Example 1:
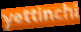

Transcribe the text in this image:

yettinchi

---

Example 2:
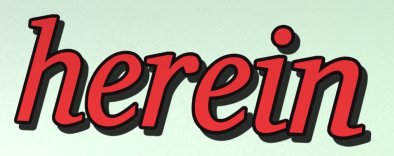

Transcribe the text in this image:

herein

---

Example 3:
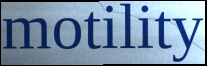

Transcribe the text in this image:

motility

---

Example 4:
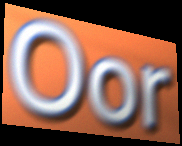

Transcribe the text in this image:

Oor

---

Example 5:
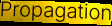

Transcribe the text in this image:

Propagation